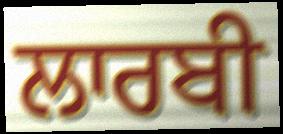
ਲਾਰਬੀ